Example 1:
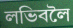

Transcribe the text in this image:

লভিবলৈ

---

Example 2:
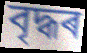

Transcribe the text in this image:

বৃদ্ধৰ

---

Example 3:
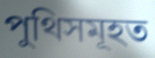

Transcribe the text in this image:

পুথিসমূহত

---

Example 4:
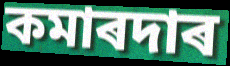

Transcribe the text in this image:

কমাৰদাৰ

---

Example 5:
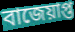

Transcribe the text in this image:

বাজেয়াপ্ত